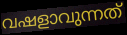
വഷളാവുന്നത്